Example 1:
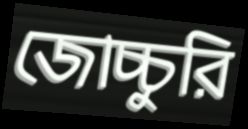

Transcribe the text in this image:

জোচ্চুরি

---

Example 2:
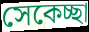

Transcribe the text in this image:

সেকেচ্ছা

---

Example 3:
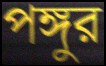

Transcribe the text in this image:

পঙ্গুর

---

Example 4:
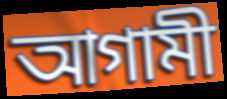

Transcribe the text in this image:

আগামী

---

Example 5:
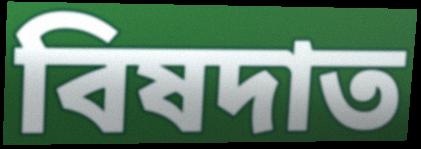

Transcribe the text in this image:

বিষদাত